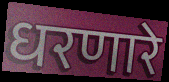
धरणारे